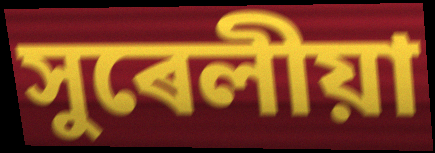
সুৰেলীয়া